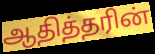
ஆதித்தரின்